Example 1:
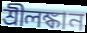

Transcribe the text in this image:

শ্রীলঙ্কান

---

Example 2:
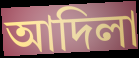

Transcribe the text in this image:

আদিলা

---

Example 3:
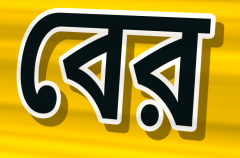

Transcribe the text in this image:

বের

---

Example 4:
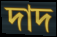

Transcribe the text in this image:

দাদ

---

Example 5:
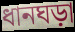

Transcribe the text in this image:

ধানঘড়া